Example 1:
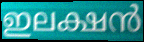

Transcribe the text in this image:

ഇലക്ഷൻ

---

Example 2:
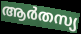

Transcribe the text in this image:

ആർതസ്യ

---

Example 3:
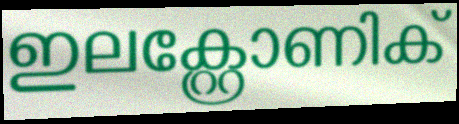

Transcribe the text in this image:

ഇലക്റ്റ്രോണിക്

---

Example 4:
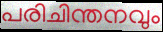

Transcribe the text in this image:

പരിചിന്തനവും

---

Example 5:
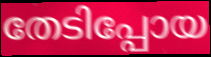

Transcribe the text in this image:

തേടിപ്പോയ